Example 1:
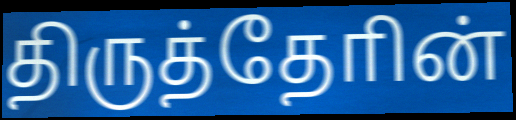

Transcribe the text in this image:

திருத்தேரின்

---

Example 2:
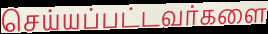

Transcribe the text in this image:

செய்யப்பட்டவர்களை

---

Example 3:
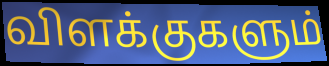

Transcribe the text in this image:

விளக்குகளும்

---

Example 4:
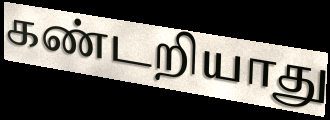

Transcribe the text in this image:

கண்டறியாது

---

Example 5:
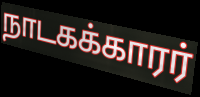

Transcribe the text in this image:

நாடகக்காரர்